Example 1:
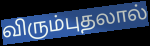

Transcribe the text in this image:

விரும்புதலால்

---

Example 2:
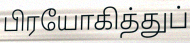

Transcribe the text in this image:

பிரயோகித்துப்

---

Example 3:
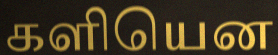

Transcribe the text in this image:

களியென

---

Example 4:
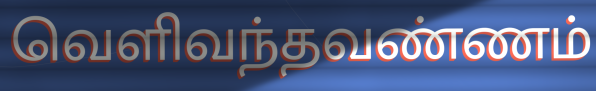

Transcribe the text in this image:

வெளிவந்தவண்ணம்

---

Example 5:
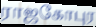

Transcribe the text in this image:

ராஜகோபுர